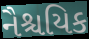
નૈશ્ચયિક